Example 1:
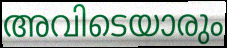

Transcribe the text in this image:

അവിടെയാരും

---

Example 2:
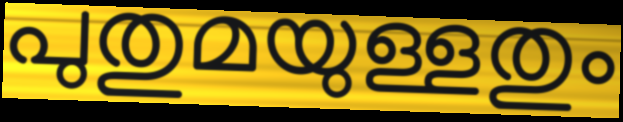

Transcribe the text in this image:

പുതുമയുള്ളതും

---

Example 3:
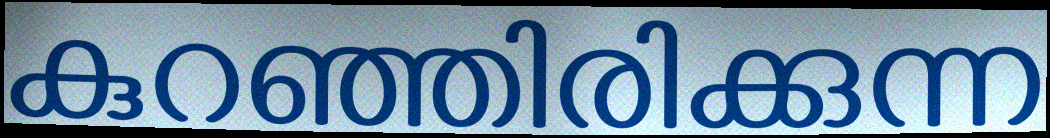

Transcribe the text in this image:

കുറഞ്ഞിരിക്കുന്ന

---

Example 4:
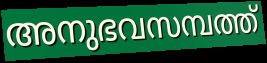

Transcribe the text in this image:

അനുഭവസമ്പത്ത്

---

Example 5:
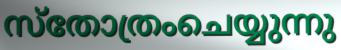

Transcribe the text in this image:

സ്തോത്രംചെയ്യുന്നു